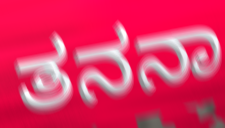
ತನನಾ